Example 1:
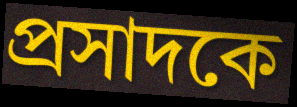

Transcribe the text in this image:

প্রসাদকে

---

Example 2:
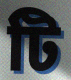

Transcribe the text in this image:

টি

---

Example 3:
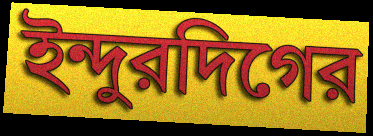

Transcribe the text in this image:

ইন্দুরদিগের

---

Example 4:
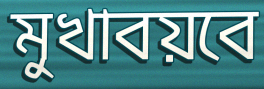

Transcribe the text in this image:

মুখাবয়বে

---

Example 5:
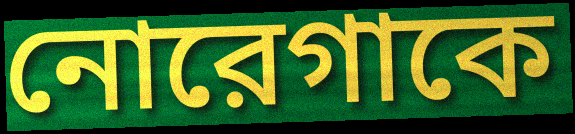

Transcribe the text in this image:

নোরেগাকে